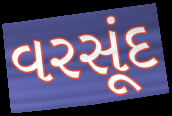
વરસૂંદ